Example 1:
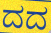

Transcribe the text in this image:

ದದ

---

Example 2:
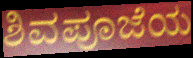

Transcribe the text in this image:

ಶಿವಪೂಜೆಯ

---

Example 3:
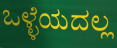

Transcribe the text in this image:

ಒಳ್ಳೆಯದಲ್ಲ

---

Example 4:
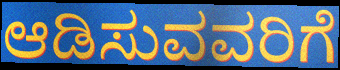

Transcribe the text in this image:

ಆಡಿಸುವವರಿಗೆ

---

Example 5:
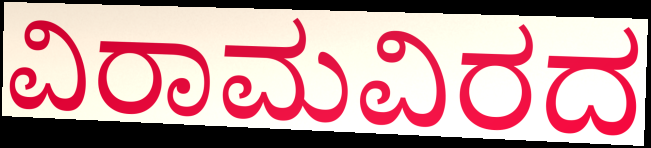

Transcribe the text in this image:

ವಿರಾಮವಿರದ